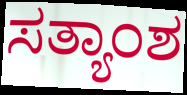
ಸತ್ಯಾಂಶ